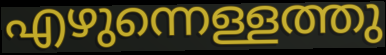
എഴുന്നെള്ളത്തു